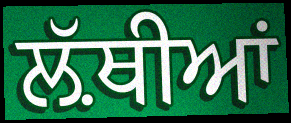
ਲ਼ੱਥੀਆਂ